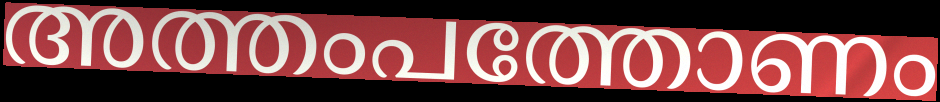
അത്തംപത്തോണം